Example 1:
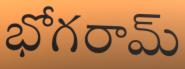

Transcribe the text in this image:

భోగరామ్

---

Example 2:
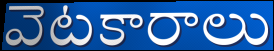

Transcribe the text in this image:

వెటకారాలు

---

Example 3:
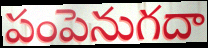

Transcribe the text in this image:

పంపెనుగదా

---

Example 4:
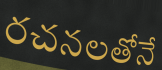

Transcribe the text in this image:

రచనలతోనే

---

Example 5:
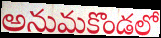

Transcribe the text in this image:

అనుమకొండలో